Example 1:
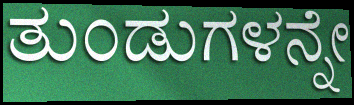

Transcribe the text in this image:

ತುಂಡುಗಳನ್ನೇ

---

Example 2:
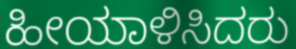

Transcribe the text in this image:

ಹೀಯಾಳಿಸಿದರು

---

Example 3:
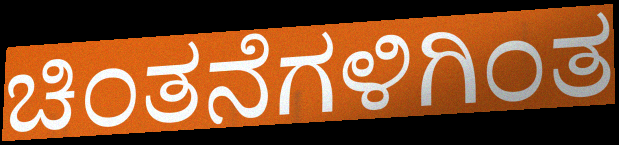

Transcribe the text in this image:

ಚಿಂತನೆಗಳಿಗಿಂತ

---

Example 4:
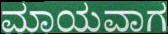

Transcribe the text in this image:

ಮಾಯವಾಗ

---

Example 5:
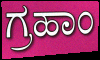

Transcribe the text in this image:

ಗ್ರಹಾಂ